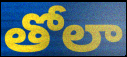
తోలా